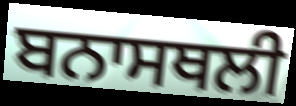
ਬਨਾਸਥਲੀ